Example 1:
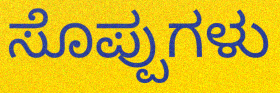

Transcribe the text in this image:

ಸೊಪ್ಪುಗಳು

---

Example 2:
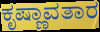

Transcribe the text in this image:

ಕೃಷ್ಣಾವತಾರ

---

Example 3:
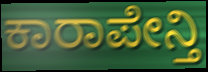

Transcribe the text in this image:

ಕಾರಾಪೇನ್ತಿ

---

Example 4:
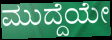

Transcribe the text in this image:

ಮುದ್ದೆಯೇ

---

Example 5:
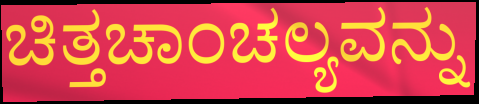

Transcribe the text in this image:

ಚಿತ್ತಚಾಂಚಲ್ಯವನ್ನು